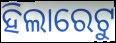
ହିଲାରେଟୁ